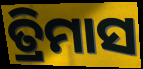
ତ୍ରିମାସ